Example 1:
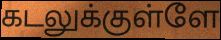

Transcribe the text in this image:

கடலுக்குள்ளே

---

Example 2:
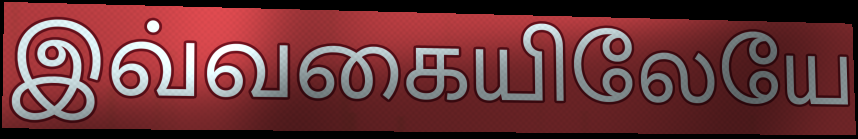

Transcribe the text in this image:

இவ்வகையிலேயே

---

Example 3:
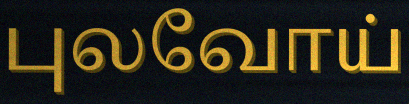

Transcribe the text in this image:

புலவோய்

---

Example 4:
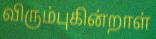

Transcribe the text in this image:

விரும்புகின்றாள்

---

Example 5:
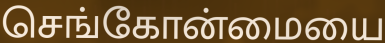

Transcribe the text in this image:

செங்கோன்மையை